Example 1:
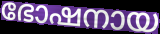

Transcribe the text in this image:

ഭോഷനായ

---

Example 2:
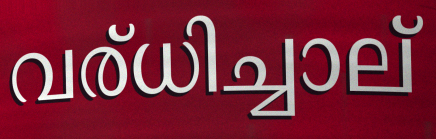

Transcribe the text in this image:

വര്ധിച്ചാല്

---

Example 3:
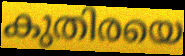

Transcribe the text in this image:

കുതിരയെ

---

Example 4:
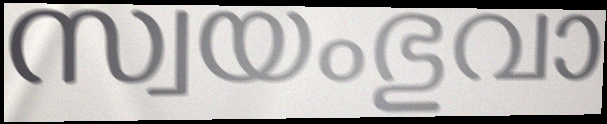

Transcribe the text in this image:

സ്വയംഭുവാ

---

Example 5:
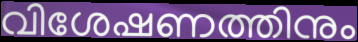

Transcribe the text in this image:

വിശേഷണത്തിനും